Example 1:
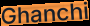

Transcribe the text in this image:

Ghanchi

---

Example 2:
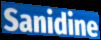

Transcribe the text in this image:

Sanidine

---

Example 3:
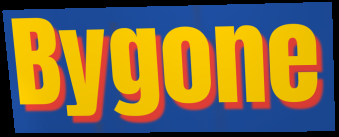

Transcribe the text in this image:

Bygone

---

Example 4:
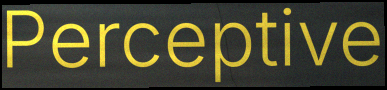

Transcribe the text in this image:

Perceptive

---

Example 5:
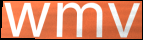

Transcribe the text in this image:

wmv